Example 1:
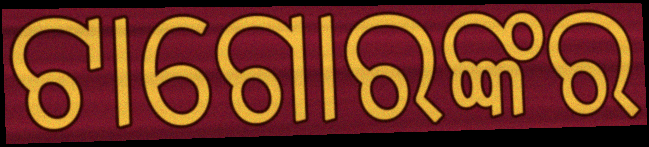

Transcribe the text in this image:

ଟାଗୋରଙ୍କର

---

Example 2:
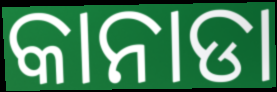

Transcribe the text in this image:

କାନାଡା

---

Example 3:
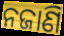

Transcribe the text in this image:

ନଜାଣି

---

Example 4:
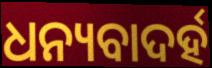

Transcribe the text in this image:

ଧନ୍ୟବାଦର୍ହ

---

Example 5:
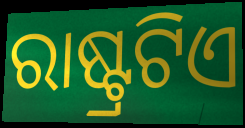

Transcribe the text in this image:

ରାଷ୍ଟ୍ରଟିଏ